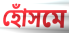
হোঁসমে